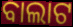
ବାଲାଟ